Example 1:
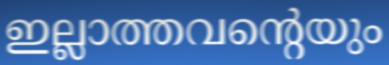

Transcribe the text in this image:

ഇല്ലാത്തവന്റെയും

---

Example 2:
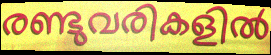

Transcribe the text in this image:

രണ്ടുവരികളിൽ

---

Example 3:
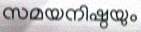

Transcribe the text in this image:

സമയനിഷ്ഠയും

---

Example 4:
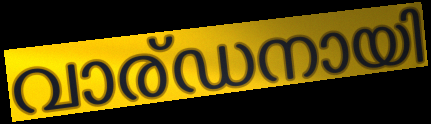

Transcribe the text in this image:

വാര്ഡനായി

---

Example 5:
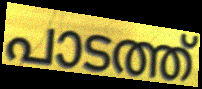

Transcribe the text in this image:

പാടത്ത്